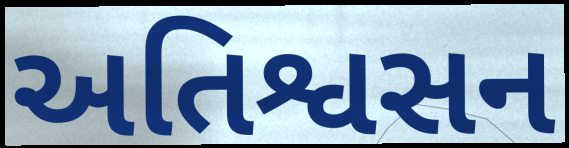
અતિશ્વસન